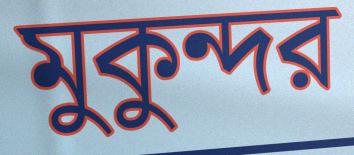
মুকুন্দর